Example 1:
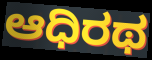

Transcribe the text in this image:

ಆಧಿರಥ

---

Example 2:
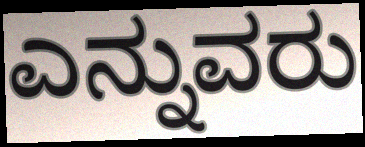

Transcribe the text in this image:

ಎನ್ನುವರು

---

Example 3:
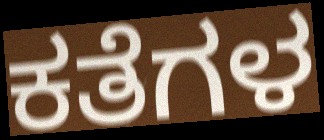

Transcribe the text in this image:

ಕತೆಗಳ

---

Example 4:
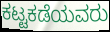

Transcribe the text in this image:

ಕಟ್ಟಕಡೆಯವರು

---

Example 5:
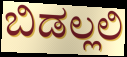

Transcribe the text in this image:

ಬಿಡಲ್ಲಲಿ